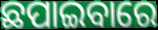
ଛପାଇବାରେ